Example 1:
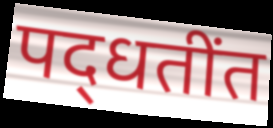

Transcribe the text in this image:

पद्धतींत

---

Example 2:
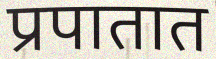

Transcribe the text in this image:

प्रपातात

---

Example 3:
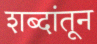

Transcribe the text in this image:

शब्दांतून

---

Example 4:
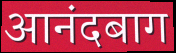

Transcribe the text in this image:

आनंदबाग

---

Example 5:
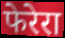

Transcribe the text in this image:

फेरेरा